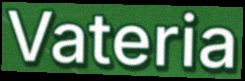
Vateria